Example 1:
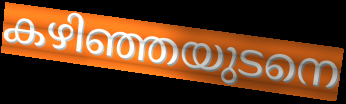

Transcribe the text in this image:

കഴിഞ്ഞയുടനെ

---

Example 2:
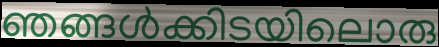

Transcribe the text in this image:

ഞങ്ങൾക്കിടയിലൊരു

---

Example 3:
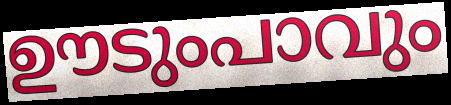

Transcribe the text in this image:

ഊടുംപാവും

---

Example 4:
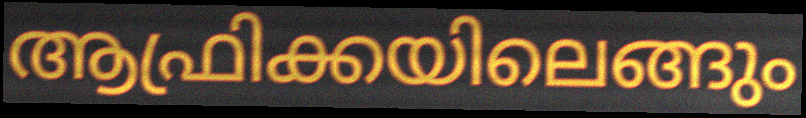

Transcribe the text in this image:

ആഫ്രിക്കയിലെങ്ങും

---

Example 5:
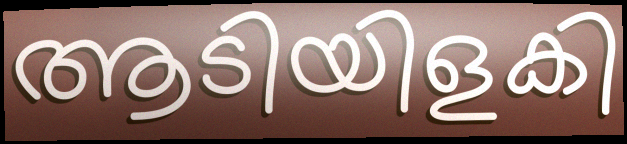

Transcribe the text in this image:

ആടിയിളകി